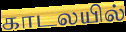
காடலயில்